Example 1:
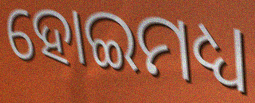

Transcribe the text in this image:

ହୋଇମଧ୍ୟ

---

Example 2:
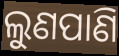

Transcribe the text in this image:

ଲୁଣପାଣି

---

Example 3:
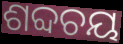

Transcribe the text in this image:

ଶବ୍ଦଚୟ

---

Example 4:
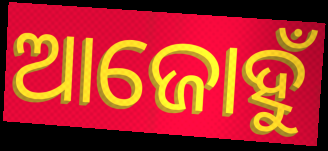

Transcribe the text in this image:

ଆଜୋହୁଁ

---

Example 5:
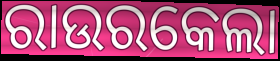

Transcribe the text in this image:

ରାଉରକେଲା